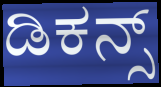
ಡಿಕನ್ಸ್